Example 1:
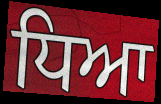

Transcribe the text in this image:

ਧਿਆ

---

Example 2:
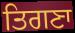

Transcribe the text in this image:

ਤਿਗਣਾ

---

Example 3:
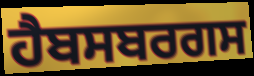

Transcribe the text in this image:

ਹੈਬਸਬਰਗਸ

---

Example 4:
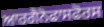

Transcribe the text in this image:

ਆਰਗੈਨੋਫਾਸਫੋਰਸ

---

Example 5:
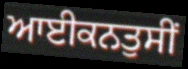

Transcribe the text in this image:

ਆਈਕਨਤੁਸੀਂ